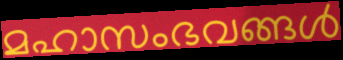
മഹാസംഭവങ്ങൾ